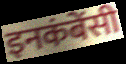
इनकंबेंसी